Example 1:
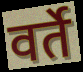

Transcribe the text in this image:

वर्ते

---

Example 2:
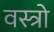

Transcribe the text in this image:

वस्त्रो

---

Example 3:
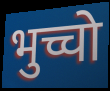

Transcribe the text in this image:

भुच्चो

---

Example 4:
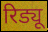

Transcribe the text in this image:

रिड्यू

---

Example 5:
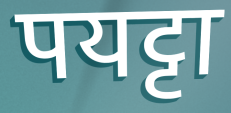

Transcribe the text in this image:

पयट्टा